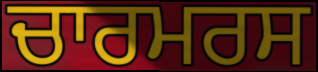
ਚਾਰਮਰਸ